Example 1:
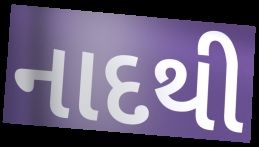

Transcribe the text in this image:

નાદથી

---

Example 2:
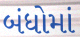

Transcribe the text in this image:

બંધોમાં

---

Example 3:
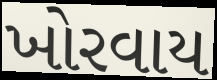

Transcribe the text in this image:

ખોરવાય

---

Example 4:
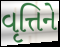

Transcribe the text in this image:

વૃત્તિને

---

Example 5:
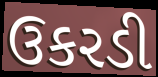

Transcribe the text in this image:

ઉકરડી